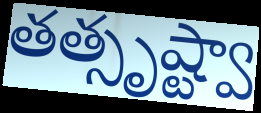
తత్సృష్ట్వా